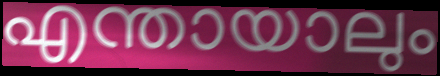
എന്തായാലും